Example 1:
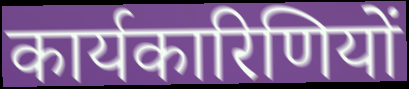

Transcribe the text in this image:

कार्यकारिणियों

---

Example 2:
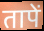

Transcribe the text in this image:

तापें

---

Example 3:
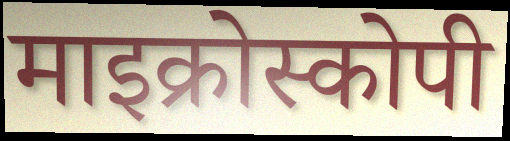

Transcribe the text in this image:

माइक्रोस्कोपी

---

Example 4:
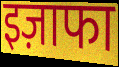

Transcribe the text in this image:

इज़ाफा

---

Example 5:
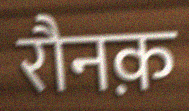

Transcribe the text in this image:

रौनक़